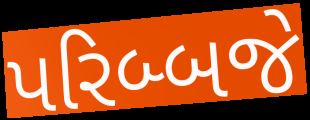
પરિબ્બજે